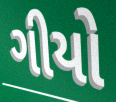
ગીયો